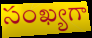
సంఖ్యగా